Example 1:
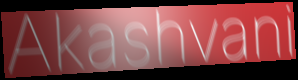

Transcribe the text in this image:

Akashvani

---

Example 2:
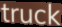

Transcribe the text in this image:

truck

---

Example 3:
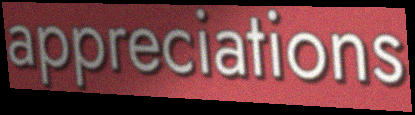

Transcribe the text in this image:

appreciations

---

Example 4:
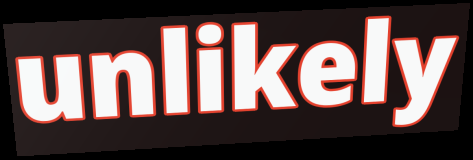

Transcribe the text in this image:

unlikely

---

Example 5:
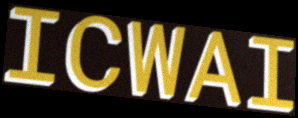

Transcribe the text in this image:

ICWAI